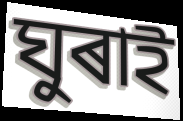
ঘুৰাই